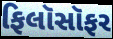
ફિલૉસૉફર